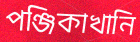
পঞ্জিকাখানি